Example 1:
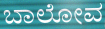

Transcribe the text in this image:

ಬಾಲೋವ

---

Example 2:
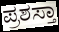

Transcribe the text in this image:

ಪ್ರಶಸ್ತಾ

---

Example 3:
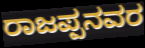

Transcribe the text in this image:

ರಾಜಪ್ಪನವರ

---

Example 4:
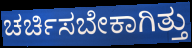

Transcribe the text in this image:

ಚರ್ಚಿಸಬೇಕಾಗಿತ್ತು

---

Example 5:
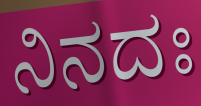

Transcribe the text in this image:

ನಿನದಃ